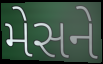
મેસને